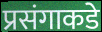
प्रसंगाकडे